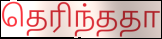
தெரிந்ததா